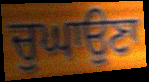
ਚੁਘਾਉਣਾ